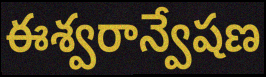
ఈశ్వరాన్వేషణ